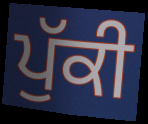
ਪੁੱਕੀ